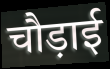
चौड़ाई